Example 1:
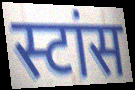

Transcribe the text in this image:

स्टांस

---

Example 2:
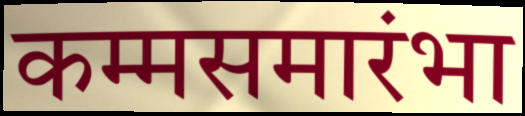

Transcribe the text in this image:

कम्मसमारंभा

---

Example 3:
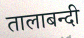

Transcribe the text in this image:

तालाबन्दी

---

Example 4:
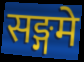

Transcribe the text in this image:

सङ्गमे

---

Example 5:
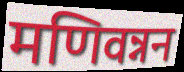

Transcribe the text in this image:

मणिवन्नन